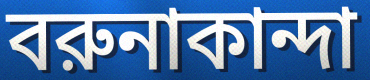
বরুনাকান্দা